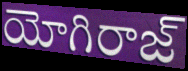
యోగిరాజ్